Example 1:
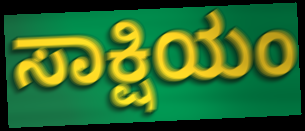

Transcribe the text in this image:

ಸಾಕ್ಷಿಯಂ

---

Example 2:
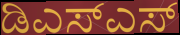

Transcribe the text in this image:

ಡಿಎಸ್ಎಸ್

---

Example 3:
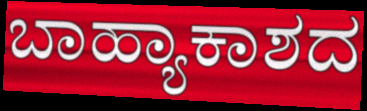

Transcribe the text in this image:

ಬಾಹ್ಯಾಕಾಶದ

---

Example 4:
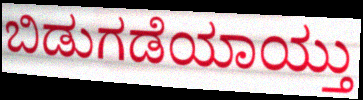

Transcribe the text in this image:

ಬಿಡುಗಡೆಯಾಯ್ತು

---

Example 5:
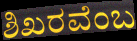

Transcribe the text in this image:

ಶಿಖರವೆಂಬ